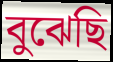
বুঝেছি